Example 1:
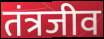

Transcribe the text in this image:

तंत्रजीव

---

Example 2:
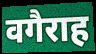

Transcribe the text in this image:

वगैराह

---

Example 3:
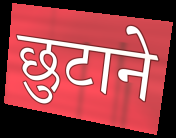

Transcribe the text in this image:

छुटाने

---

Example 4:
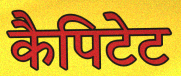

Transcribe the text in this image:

कैपिटेट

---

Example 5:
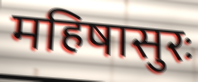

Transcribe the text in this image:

महिषासुरः